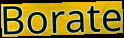
Borate